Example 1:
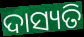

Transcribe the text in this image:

ଦାସ୍ୟତି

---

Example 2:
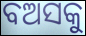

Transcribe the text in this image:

ବଅସକୁ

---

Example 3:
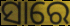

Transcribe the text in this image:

ସାରେ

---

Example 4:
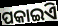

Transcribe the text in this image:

ପକାଇିଏ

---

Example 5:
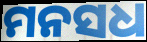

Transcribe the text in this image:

ମନସଧ